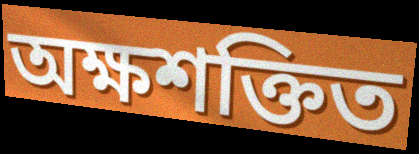
অক্ষশক্তিত